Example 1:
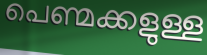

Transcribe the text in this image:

പെണ്മക്കളുള്ള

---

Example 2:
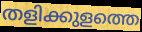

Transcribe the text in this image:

തളിക്കുളത്തെ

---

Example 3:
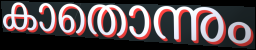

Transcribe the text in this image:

കാതൊന്നും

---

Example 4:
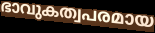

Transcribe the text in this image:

ഭാവുകത്വപരമായ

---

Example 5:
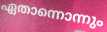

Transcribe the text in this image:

ഏതാന്നൊന്നും